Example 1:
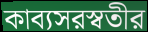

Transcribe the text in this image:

কাব্যসরস্বতীর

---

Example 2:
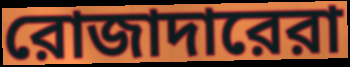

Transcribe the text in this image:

রোজাদারেরা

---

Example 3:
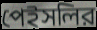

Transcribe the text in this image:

পেইসলির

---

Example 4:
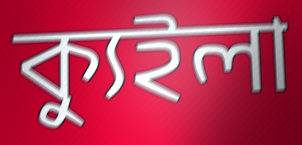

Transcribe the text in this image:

ক্যুইলা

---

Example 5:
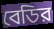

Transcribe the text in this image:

বেডির